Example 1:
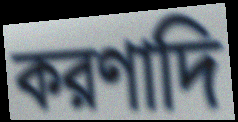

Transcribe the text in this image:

করণাদি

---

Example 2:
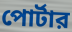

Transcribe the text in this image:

পোর্টার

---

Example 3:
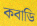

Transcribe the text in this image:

কবাডি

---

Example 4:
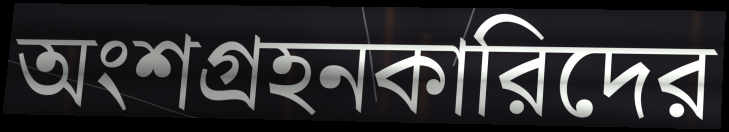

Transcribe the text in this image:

অংশগ্রহনকারিদের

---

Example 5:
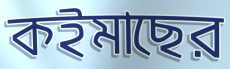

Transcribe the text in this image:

কইমাছের